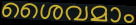
ശൈവമാം